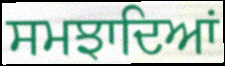
ਸਮਝਾਦਿਆਂ